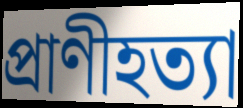
প্রাণীহত্যা